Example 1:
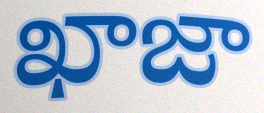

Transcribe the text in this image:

ఖాజా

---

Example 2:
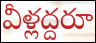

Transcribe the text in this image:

వీళ్లద్దరూ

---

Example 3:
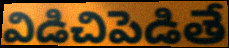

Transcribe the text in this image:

విడిచిపెడితే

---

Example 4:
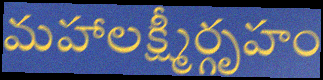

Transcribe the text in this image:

మహాలక్ష్మీర్గృహం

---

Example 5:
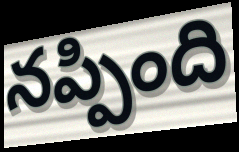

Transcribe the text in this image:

నప్పింది